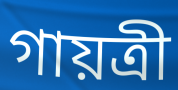
গায়ত্ৰী